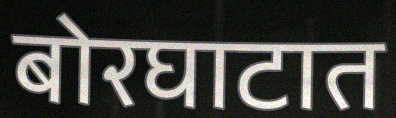
बोरघाटात